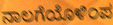
ನಾಲಗೆಯೊಳಿಂಪ